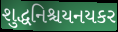
શુદ્ધનિશ્ચયનયકર